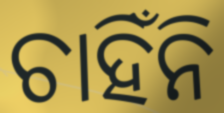
ଚାହିଁନି